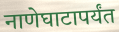
नाणेघाटापर्यंत